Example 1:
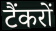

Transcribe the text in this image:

टैंकरों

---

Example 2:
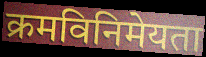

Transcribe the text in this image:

क्रमविनिमेयता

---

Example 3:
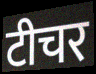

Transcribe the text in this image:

टीचर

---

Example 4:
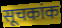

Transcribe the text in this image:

सूचकांक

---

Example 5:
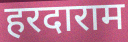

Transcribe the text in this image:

हरदाराम